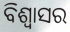
ବିଶ୍ୱାସର